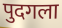
पुदगला